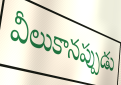
వీలుకానప్పుడు